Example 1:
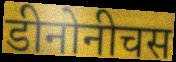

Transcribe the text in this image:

डीनोनीचस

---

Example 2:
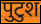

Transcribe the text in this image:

पुटुश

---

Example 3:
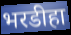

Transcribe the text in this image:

भरडीहा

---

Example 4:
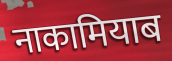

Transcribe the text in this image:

नाकामियाब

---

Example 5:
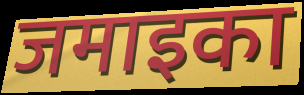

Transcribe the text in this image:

जमाइका